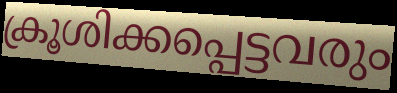
ക്രൂശിക്കപ്പെട്ടവരും